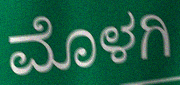
ಮೊಳಗಿ